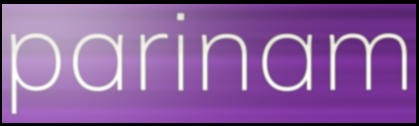
parinam